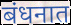
बंधनात